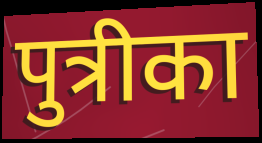
पुत्रीका